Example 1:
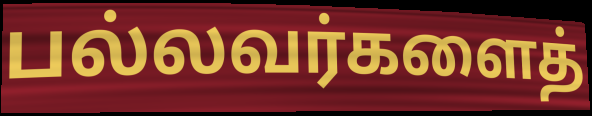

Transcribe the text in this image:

பல்லவர்களைத்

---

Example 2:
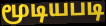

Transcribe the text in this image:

மூடியபடி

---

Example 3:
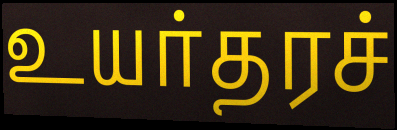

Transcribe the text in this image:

உயர்தரச்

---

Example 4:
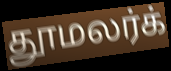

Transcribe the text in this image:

தூமலர்க்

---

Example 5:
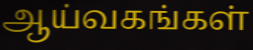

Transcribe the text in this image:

ஆய்வகங்கள்